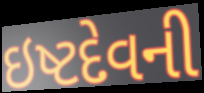
ઇષ્ટદેવની